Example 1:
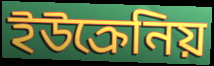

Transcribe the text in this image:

ইউক্রেনিয়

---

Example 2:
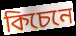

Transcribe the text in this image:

কিচেনে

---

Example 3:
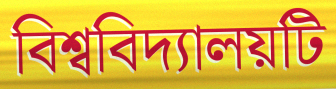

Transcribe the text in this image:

বিশ্ববিদ্যালয়টি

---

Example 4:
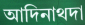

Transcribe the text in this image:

আদিনাথদা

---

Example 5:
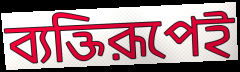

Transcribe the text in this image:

ব্যক্তিরূপেই